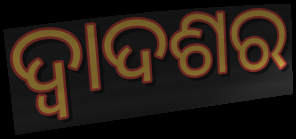
ଦ୍ୱାଦଶର